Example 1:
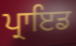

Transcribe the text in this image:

ਪ੍ਰਾਇਡ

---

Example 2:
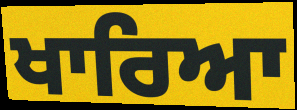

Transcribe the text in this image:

ਖਾਰਿਆ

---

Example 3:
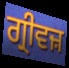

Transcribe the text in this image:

ਗ੍ਰੀਵਜ਼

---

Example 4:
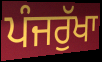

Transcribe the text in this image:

ਪੰਜਰੁੱਖਾ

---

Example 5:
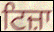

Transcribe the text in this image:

ਟਿਜ਼ਾ